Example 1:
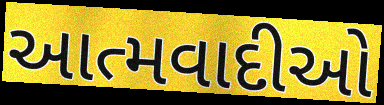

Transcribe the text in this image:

આત્મવાદીઓ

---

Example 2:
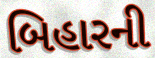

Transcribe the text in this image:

બિહારની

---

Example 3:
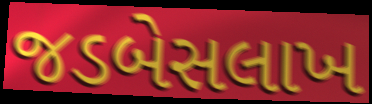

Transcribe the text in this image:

જડબેસલાખ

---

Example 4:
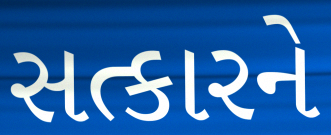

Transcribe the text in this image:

સત્કારને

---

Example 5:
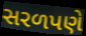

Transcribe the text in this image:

સરળપણે